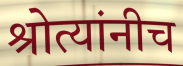
श्रोत्यांनीच